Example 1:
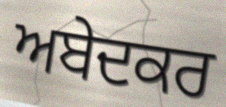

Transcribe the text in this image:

ਅਬੇਦਕਰ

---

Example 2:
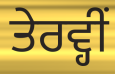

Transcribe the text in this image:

ਤੇਰਵ੍ਹੀਂ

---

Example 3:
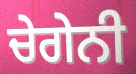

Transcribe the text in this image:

ਚੇਗੇਨੀ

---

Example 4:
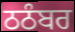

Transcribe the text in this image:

ਠਠੰਬਰ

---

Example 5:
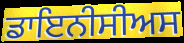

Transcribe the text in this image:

ਡਾਇਨੀਸੀਅਸ